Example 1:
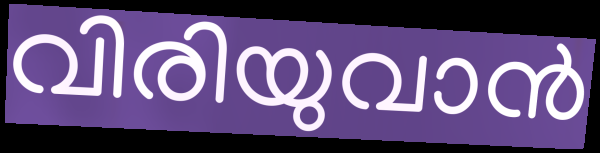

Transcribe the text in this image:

വിരിയുവാൻ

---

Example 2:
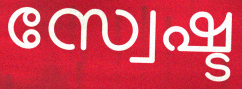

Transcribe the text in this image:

സ്വേഷ്ട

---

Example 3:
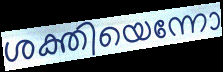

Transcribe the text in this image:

ശക്തിയെന്നോ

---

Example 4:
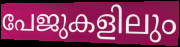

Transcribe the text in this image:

പേജുകളിലും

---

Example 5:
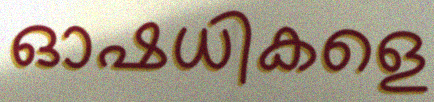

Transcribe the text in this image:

ഓഷധികളെ